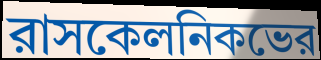
রাসকেলনিকভের